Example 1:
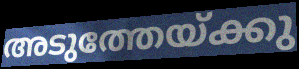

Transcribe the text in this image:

അടുത്തേയ്ക്കു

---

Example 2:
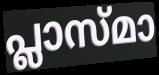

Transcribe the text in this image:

പ്ലാസ്മാ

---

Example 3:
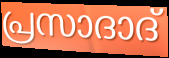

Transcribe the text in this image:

പ്രസാദാദ്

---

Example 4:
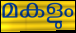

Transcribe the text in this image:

മകളും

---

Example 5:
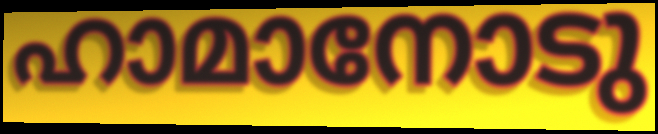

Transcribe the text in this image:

ഹാമാനോടു